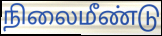
நிலைமீண்டு